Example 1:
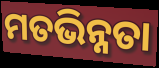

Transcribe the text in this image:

ମତଭିନ୍ନତା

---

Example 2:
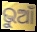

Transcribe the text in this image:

ଭୁଆଁ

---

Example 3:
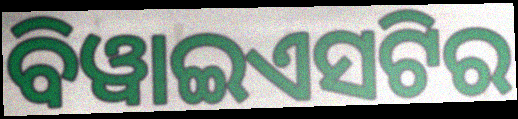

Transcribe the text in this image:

ବିୱାଇଏସଟିର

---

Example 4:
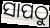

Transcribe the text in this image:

ସାପଠୁ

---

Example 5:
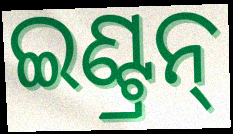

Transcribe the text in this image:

ଇଣ୍ଟ୍ରନ୍